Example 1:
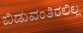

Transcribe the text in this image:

ಬಿಡುವಂತಿರಲಿಲ್ಲ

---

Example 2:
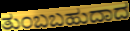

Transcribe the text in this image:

ತುಂಬಬಹುದಾದ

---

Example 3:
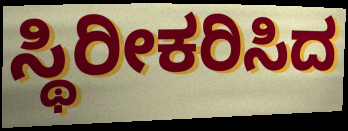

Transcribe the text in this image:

ಸ್ಥಿರೀಕರಿಸಿದ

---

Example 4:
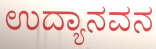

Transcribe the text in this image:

ಉದ್ಯಾನವನ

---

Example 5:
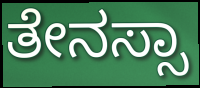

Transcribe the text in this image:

ತೇನಸ್ಸಾ